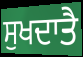
ਸੁਖਦਾਤੈ